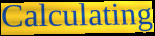
Calculating